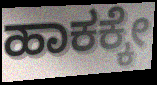
ಹಾಕಕ್ಕೇ